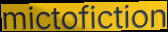
mictofiction